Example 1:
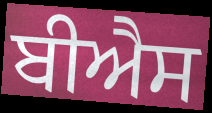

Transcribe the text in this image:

ਬੀਐਸ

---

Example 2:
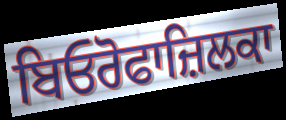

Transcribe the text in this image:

ਬਿਓਰੋਫਾਜ਼ਿਲਕਾ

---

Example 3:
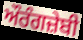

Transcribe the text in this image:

ਔਰੰਗਜ਼ੇਬੀ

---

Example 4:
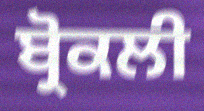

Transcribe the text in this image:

ਬ੍ਰੋਕਲੀ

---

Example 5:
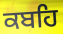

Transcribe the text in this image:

ਕਬਹਿ